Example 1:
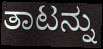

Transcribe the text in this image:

ತಾಟನ್ನು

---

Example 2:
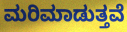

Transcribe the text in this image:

ಮರಿಮಾಡುತ್ತವೆ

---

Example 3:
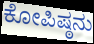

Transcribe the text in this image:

ಕೋಪಿಷ್ಠನು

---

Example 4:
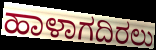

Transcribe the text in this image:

ಹಾಳಾಗದಿರಲು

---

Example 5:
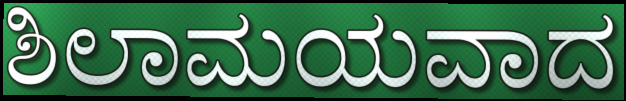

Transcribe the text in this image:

ಶಿಲಾಮಯವಾದ